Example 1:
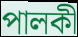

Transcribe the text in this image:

পালকী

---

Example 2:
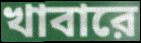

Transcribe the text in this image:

খাবারে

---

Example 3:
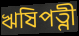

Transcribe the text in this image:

ঋষিপত্নী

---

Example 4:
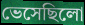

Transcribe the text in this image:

ভেসেছিলো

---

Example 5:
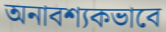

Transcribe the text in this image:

অনাবশ্যকভাবে